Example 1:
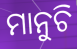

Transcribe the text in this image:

ମାନୁଚି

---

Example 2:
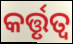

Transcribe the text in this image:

କର୍ତ୍ତୃତ୍ୱ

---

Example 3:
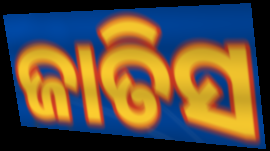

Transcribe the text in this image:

ଜାତିସ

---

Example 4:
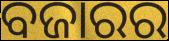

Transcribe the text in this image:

ବଜାରର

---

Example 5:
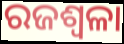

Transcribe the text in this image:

ରଜଶ୍ୱଳା